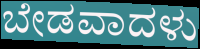
ಬೇಡವಾದಳು